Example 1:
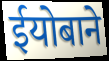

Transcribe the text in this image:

ईयोबाने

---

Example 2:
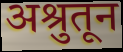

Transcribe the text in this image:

अश्रुतून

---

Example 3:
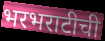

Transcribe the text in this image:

भरभराटीची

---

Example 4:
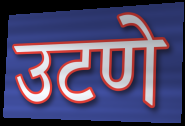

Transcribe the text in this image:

उटणे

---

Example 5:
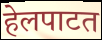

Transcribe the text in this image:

हेलपाटत